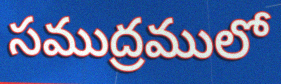
సముద్రములో